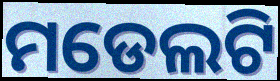
ମଡେଲଟି